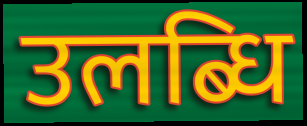
उलब्धि